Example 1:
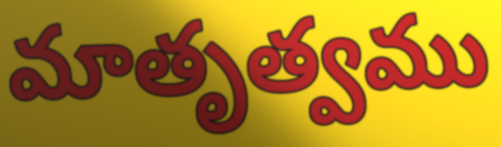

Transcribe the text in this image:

మాతృత్వము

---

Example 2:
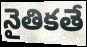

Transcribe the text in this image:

నైతికతే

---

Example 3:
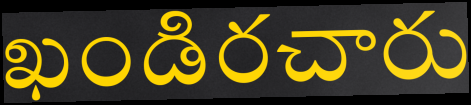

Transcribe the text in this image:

ఖండిరచారు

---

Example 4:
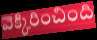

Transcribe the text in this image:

వెక్కిరించింది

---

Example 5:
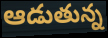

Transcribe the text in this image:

ఆడుతున్న